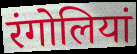
रंगोलियां